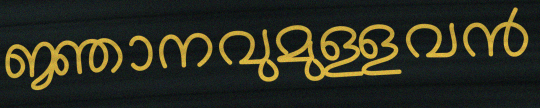
ജ്ഞാനവുമുള്ളവൻ